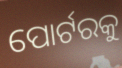
ପୋର୍ଟରକୁ